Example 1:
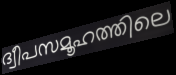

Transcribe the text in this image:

ദ്വീപസമൂഹത്തിലെ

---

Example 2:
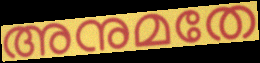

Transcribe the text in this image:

അനുമതേ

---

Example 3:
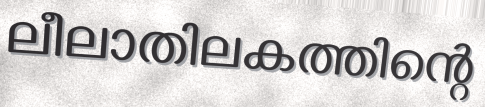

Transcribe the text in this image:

ലീലാതിലകത്തിന്റെ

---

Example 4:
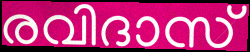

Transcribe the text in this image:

രവിദാസ്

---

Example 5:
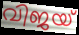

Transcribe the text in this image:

വിജയ്